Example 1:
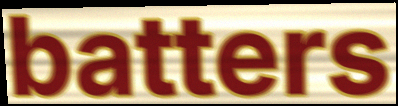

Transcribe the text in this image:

batters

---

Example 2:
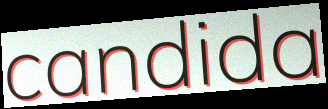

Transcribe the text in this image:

candida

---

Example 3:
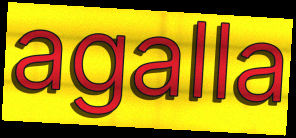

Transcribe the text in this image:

agalla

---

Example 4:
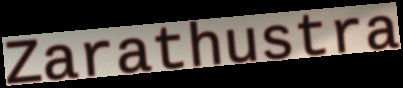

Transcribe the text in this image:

Zarathustra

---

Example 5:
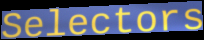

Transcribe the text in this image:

Selectors